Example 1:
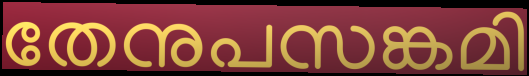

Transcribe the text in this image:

തേനുപസങ്കമി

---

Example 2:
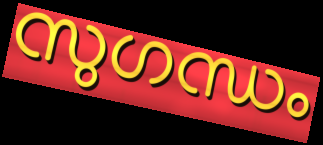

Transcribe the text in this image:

സുഗന്ധം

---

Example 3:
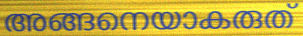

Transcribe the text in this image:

അങ്ങനെയാകരുത്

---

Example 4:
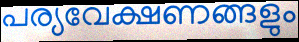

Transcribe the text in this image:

പര്യവേക്ഷണങ്ങളും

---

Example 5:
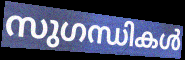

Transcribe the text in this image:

സുഗന്ധികൾ